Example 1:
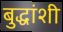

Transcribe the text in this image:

बुद्धांशी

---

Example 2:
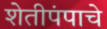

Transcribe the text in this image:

शेतीपंपाचे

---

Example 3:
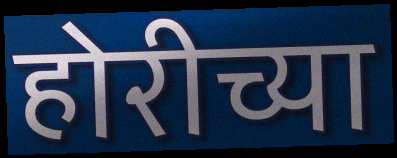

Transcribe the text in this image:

होरीच्या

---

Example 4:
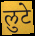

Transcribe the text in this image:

लुटे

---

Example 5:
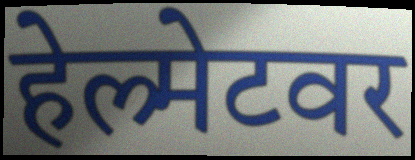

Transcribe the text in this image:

हेल्मेटवर